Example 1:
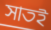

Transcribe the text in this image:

সাতই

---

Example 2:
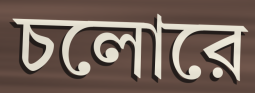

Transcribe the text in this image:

চলোরে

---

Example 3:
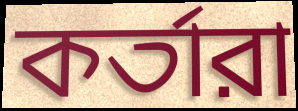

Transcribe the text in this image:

কর্তারা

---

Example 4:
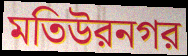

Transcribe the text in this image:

মতিউরনগর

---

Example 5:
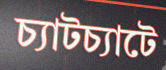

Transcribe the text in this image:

চ্যাটচ্যাটে